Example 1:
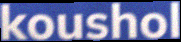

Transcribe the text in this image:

koushol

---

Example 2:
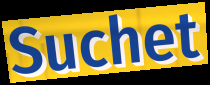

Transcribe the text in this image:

Suchet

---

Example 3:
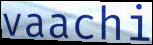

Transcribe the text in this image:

vaachi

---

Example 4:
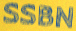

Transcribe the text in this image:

SSBN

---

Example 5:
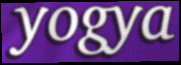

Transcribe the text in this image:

yogya